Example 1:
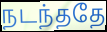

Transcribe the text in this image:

நடந்ததே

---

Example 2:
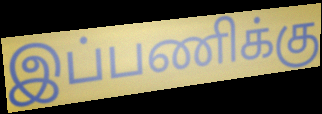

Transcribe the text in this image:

இப்பணிக்கு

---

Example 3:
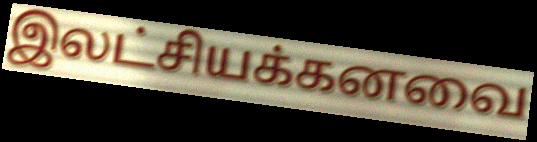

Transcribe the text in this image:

இலட்சியக்கனவை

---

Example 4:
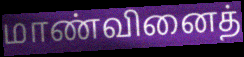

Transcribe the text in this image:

மாண்வினைத்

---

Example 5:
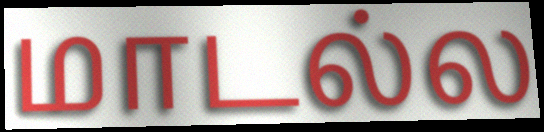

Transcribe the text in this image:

மாடல்ல